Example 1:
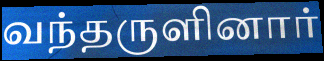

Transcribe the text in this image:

வந்தருளினார்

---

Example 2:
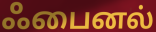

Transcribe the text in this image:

ஃபைனல்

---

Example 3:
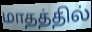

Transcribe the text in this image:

மாதத்தில்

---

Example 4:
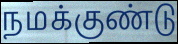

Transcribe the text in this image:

நமக்குண்டு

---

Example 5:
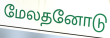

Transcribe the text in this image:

மேலதனோடு